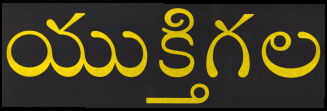
యుక్తిగల